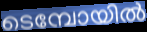
ടെമ്പോയിൽ